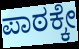
ಪಾಠಕ್ಕೇ